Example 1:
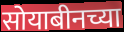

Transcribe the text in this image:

सोयाबीनच्या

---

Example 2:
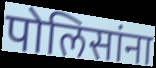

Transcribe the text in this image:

पोलिसांना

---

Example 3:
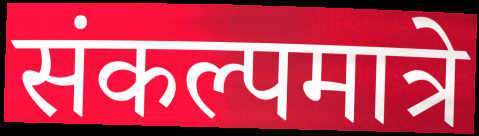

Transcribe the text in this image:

संकल्पमात्रे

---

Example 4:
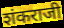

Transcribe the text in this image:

शंकराजी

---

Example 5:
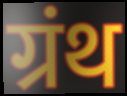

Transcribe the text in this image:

ग्रंथ